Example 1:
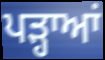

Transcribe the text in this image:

ਪੜ੍ਹਾਆਂ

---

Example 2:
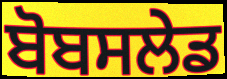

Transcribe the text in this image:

ਬੋਬਸਲੇਡ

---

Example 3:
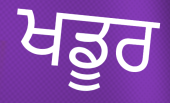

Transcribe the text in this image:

ਖਡੂਰ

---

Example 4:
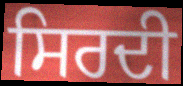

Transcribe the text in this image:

ਸਿਰਦੀ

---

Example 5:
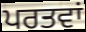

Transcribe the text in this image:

ਪਰਤਵਾਂ